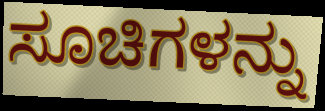
ಸೂಚಿಗಳನ್ನು